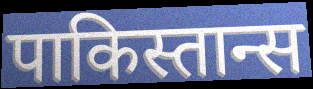
पाकिस्तान्स